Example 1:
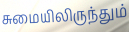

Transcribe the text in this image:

சுமையிலிருந்தும்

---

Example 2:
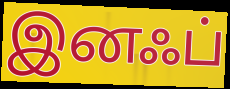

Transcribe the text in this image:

இனஃப்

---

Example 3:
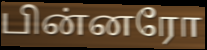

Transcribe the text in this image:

பின்னரோ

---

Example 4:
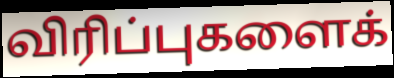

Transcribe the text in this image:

விரிப்புகளைக்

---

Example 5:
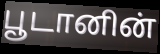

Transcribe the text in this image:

பூடானின்